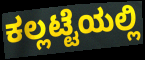
ಕಲ್ಲಟ್ಟೆಯಲ್ಲಿ